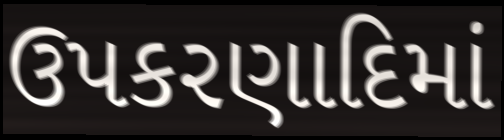
ઉપકરણાદિમાં